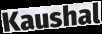
Kaushal